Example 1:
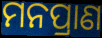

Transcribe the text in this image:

ମନପ୍ରାଣ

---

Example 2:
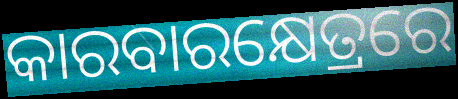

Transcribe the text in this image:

କାରବାରକ୍ଷେତ୍ରରେ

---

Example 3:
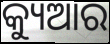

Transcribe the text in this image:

କ୍ୟୁଆର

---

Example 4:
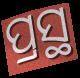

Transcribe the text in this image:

ପ୍ରସ୍ଥ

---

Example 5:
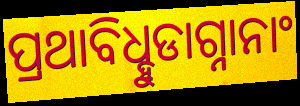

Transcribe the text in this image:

ପ୍ରଥାବିଧ୍ହୁଡାଗ୍ନାନାଂ